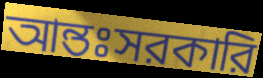
আন্তঃসরকারি